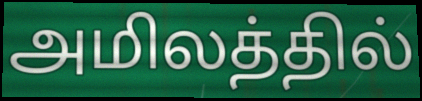
அமிலத்தில்